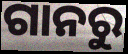
ଗାନରୁ